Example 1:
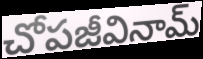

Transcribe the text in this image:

చోపజీవినామ్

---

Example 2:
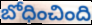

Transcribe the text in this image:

బోధించింది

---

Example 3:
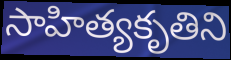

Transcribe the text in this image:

సాహిత్యకృతిని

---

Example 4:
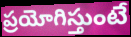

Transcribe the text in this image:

ప్రయోగిస్తుంటే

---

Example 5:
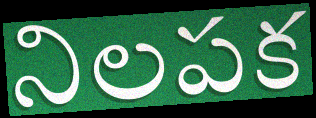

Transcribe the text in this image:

నిలపక